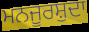
ਮਨਜੂਰਸ਼ੁਦਾ